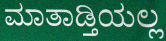
ಮಾತಾಡ್ತಿಯಲ್ಲ